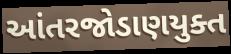
આંતરજોડાણયુક્ત